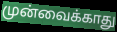
முன்வைக்காது